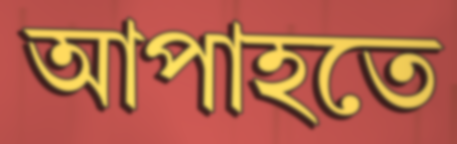
আপাহতে